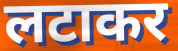
लटाकर